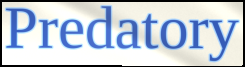
Predatory